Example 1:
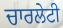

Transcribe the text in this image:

ਚਾਰਲੇਟੀ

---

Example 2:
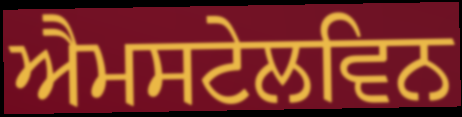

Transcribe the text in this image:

ਐਮਸਟੇਲਵਿਨ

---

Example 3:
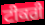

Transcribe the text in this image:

ਟੀਕਰੀ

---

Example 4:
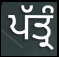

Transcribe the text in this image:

ਪੱਤ੍ਰੰ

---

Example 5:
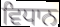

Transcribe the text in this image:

ਵਿਧਾਨ